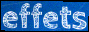
effets